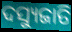
ଦସ୍ୟୁଜାତି